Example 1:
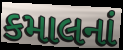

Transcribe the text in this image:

કમાલનાં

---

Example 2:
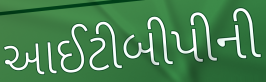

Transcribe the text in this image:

આઈટીબીપીની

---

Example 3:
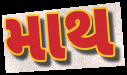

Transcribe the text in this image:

માથ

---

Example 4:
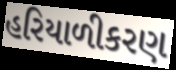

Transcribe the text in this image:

હરિયાળીકરણ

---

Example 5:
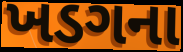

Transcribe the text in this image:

ખડગના